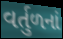
વર્તુળનાં